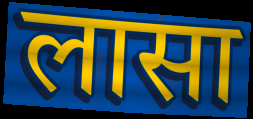
लासा